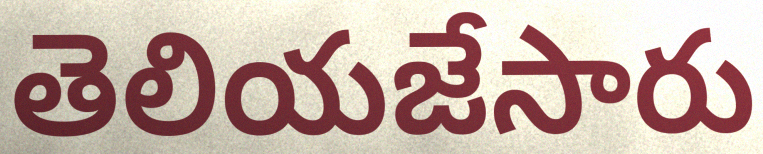
తెలియజేసారు